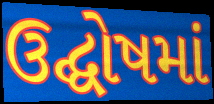
ઉદ્ઘોષમાં